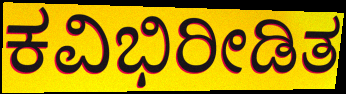
ಕವಿಭಿರೀಡಿತ